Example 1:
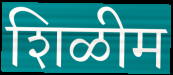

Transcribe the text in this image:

शिळीम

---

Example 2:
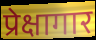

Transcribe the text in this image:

प्रेक्षागार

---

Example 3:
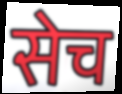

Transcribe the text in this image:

सेच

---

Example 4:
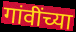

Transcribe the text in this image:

गांवींच्या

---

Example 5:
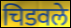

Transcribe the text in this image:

चिडवले